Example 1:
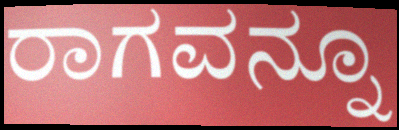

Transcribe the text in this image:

ರಾಗವನ್ನೂ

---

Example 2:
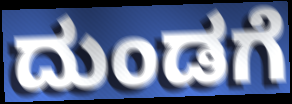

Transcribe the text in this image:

ದುಂಡಗೆ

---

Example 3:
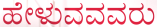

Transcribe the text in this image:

ಹೇಳುವವವರು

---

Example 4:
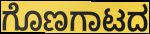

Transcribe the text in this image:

ಗೊಣಗಾಟದ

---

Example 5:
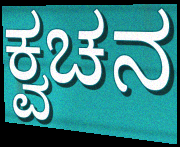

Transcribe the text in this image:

ಕ್ವಚನ